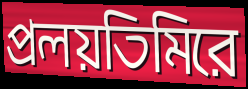
প্রলয়তিমিরে